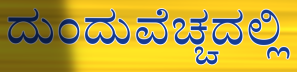
ದುಂದುವೆಚ್ಚದಲ್ಲಿ